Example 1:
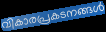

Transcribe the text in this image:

വികാരപ്രകടനങ്ങൾ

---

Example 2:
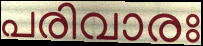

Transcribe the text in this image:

പരിവാരഃ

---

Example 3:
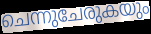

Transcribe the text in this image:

ചെന്നുചേരുകയും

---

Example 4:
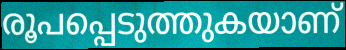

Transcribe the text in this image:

രൂപപ്പെടുത്തുകയാണ്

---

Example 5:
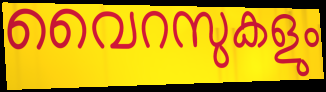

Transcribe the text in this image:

വൈറസുകളും